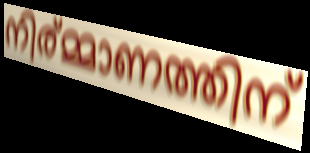
നിര്മ്മാണത്തിന്